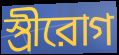
স্ত্রীরোগ